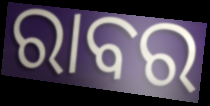
ରାବର